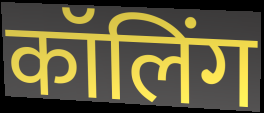
कॉलिंग